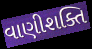
વાણીશક્તિ